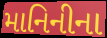
માનિનીના